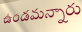
ఉండమన్నారు